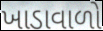
ખાડાવાળો